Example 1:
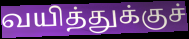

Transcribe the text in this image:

வயித்துக்குச்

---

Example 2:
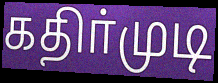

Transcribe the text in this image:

கதிர்முடி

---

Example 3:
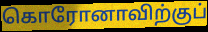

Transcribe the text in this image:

கொரோனாவிற்குப்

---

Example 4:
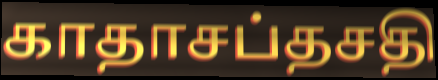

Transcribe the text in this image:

காதாசப்தசதி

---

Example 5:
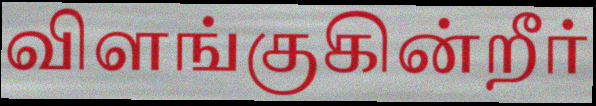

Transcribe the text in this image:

விளங்குகின்றீர்